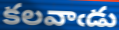
కలవాఁడు